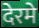
देरमे